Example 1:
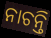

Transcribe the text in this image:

ନାଚନ୍ତି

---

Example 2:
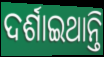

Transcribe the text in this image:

ଦର୍ଶାଇଥାନ୍ତି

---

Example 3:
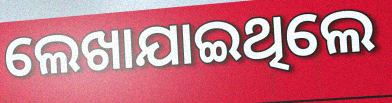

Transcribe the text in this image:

ଲେଖାଯାଇଥିଲେ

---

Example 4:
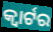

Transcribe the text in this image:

କ୍ଵାର୍ଟର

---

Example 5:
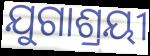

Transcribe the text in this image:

ଯୁଗାଶ୍ରୟୀ